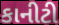
કાનીટી